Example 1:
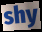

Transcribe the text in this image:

shy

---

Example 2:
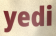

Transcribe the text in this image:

yedi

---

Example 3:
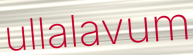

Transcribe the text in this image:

ullalavum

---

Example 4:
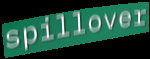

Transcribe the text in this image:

spillover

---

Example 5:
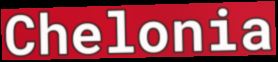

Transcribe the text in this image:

Chelonia